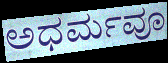
ಅಧರ್ಮವೂ